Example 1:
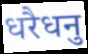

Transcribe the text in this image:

धरैधनु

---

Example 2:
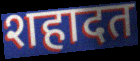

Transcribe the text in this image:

शहादत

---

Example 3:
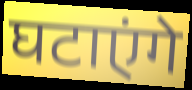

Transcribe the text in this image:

घटाएंगे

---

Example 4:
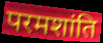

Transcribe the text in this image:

परमशांति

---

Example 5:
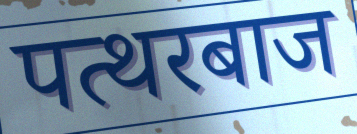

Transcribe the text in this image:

पत्थरबाज